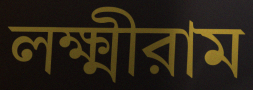
লক্ষ্মীরাম